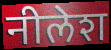
नीलेश